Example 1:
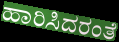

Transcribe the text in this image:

ಹಾರಿಸಿದರಂತೆ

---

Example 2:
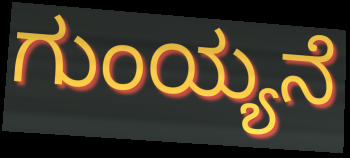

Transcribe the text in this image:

ಗುಂಯ್ಯನೆ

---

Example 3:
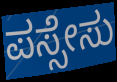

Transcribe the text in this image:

ಪಸ್ಸೇಸು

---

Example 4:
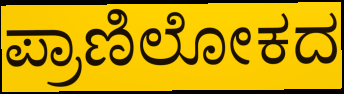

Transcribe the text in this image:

ಪ್ರಾಣಿಲೋಕದ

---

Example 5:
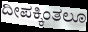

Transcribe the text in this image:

ದೀಪಕ್ಕಿಂತಲೂ